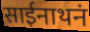
साईनाथनं